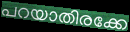
പറയാതിരക്കേ